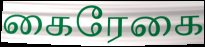
கைரேகை